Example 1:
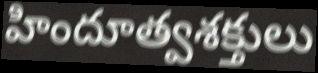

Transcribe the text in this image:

హిందూత్వశక్తులు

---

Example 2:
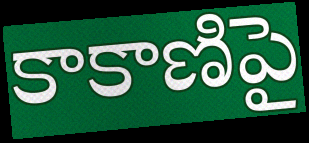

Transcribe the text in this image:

కాకాణిపై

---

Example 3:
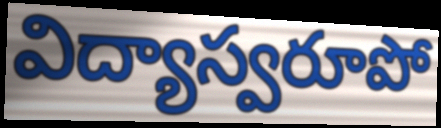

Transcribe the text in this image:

విద్యాస్వరూపో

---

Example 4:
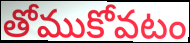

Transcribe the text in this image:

తోముకోవటం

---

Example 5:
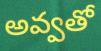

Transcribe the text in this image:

అవ్వతో